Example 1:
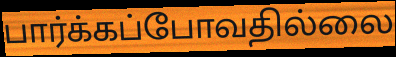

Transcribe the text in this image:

பார்க்கப்போவதில்லை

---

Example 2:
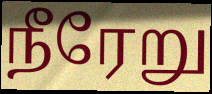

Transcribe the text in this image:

நீரேறு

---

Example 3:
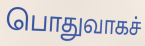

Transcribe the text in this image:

பொதுவாகச்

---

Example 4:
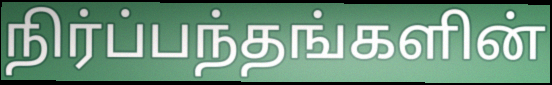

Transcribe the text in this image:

நிர்ப்பந்தங்களின்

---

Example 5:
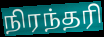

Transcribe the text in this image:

நிரந்தரி